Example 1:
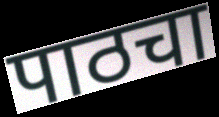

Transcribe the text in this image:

पाठचा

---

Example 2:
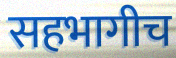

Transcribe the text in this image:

सहभागीच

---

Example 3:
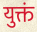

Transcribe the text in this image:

युक्तं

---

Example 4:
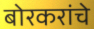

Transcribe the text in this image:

बोरकरांचे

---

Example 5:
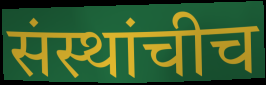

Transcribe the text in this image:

संस्थांचीच